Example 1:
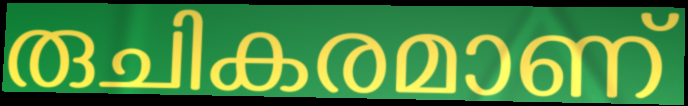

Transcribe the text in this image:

രുചികരമാണ്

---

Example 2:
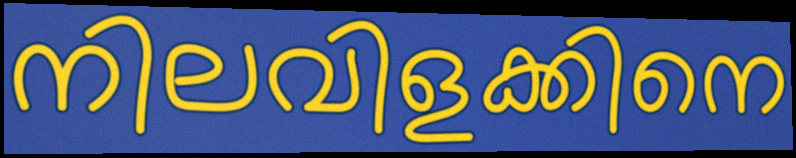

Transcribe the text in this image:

നിലവിളക്കിനെ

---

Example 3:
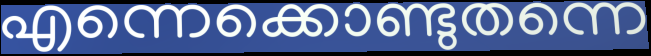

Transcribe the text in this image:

എന്നെക്കൊണ്ടുതന്നെ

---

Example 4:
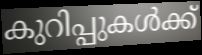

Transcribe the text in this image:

കുറിപ്പുകൾക്ക്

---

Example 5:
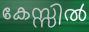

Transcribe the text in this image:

കേസ്സിൽ